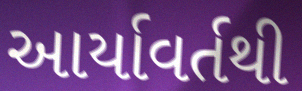
આર્યાવર્તથી